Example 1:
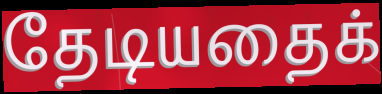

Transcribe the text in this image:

தேடியதைக்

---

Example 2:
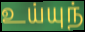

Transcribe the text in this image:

உய்யுந்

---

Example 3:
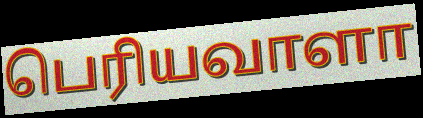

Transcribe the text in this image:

பெரியவாளா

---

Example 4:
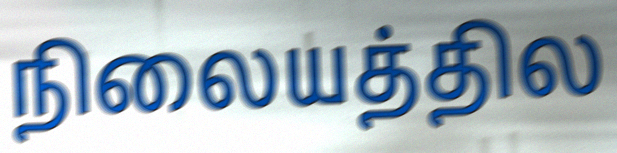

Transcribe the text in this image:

நிலையத்தில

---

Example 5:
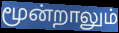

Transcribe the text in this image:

மூன்றாலும்